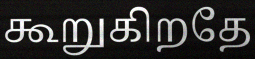
கூறுகிறதே